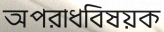
অপরাধবিষয়ক